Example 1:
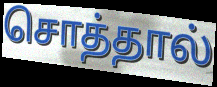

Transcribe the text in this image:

சொத்தால்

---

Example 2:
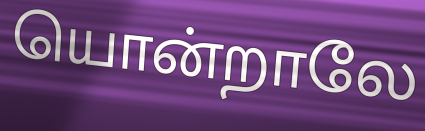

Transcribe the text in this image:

யொன்றாலே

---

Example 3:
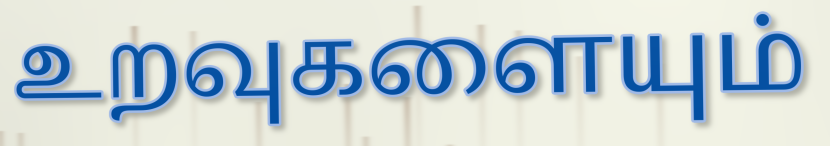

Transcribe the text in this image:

உறவுகளையும்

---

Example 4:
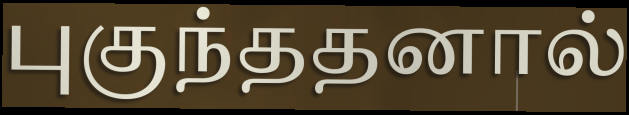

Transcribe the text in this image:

புகுந்ததனால்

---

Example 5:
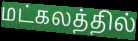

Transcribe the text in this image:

மட்கலத்தில்